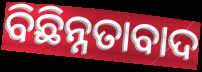
ବିଛିନ୍ନତାବାଦ